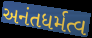
અનંતધર્મત્વ